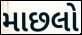
માછલો